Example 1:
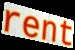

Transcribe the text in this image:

rent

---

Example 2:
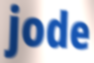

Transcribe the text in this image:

jode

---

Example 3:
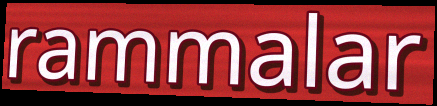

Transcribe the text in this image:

rammalar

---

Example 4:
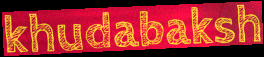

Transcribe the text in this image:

khudabaksh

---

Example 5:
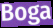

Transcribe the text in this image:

Boga